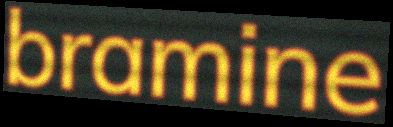
bramine